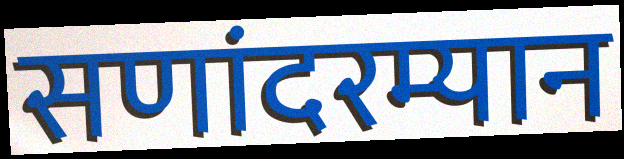
सणांदरम्यान